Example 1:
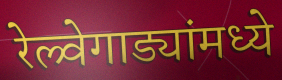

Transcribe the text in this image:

रेल्वेगाड्यांमध्ये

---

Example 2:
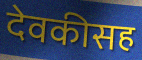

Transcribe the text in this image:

देवकीसह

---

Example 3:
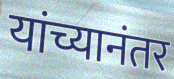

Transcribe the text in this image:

यांच्यानंतर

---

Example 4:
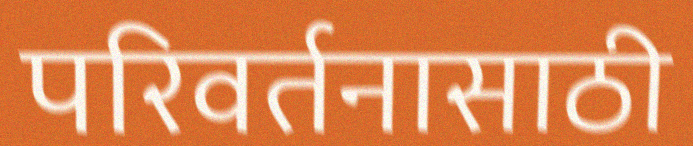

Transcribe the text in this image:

परिवर्तनासाठी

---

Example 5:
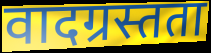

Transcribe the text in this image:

वादग्रस्तता